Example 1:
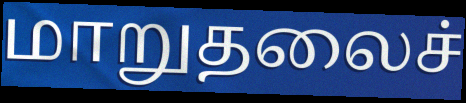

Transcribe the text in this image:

மாறுதலைச்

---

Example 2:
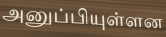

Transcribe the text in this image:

அனுப்பியுள்ளன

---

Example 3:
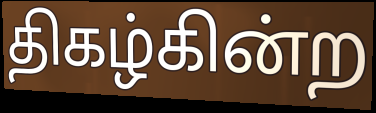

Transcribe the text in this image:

திகழ்கின்ற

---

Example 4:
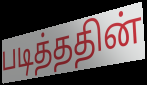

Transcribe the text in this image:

படித்ததின்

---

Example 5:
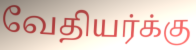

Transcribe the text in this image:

வேதியர்க்கு